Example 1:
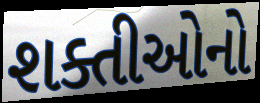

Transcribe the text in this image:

શક્તીઓનો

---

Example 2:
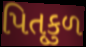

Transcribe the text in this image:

પિતૃકુળ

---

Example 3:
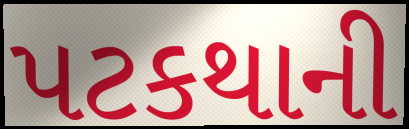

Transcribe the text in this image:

પટકથાની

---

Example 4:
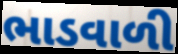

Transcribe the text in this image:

ભાડવાળી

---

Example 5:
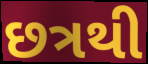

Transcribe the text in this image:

છત્રથી